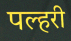
पल्हरी